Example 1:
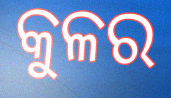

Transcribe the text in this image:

କୁଳର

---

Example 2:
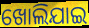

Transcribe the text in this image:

ଖୋଲିଯାଇ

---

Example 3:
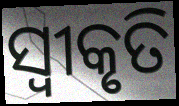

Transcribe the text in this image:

ସ୍ବୀକୃତି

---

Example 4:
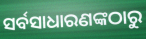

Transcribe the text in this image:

ସର୍ବସାଧାରଣଙ୍କଠାରୁ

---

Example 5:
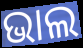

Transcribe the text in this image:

ଭାଲ